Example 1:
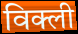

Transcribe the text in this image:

विक्ली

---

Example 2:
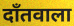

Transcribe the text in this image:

दाँतवाला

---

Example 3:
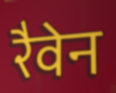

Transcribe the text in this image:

रैवेन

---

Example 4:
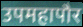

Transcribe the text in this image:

उपमहापौर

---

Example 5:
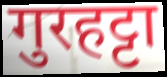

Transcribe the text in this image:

गुरहट्टा